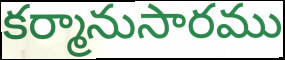
కర్మానుసారము